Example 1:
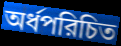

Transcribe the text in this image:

অর্ধপরিচিত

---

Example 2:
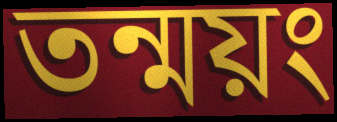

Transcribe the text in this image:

তন্ময়ং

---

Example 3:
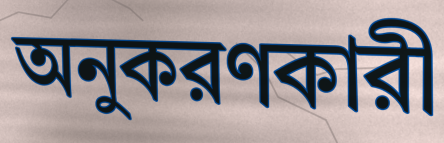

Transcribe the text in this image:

অনুকরণকারী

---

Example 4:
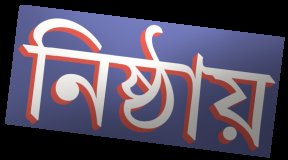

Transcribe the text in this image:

নিষ্ঠায়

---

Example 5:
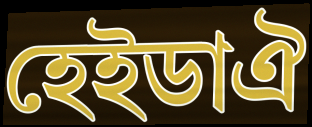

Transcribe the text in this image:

হেইডাঐ